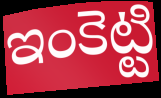
ఇంకెట్టి